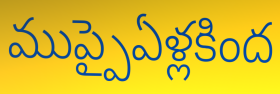
ముప్పైఏళ్లకింద